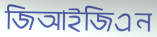
জিআইজিএন